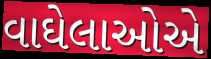
વાઘેલાઓએ